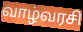
வாழ்வரசி